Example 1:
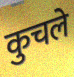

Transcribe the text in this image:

कुचले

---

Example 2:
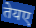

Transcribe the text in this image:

तेयए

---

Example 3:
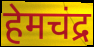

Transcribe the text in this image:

हेमचंद्र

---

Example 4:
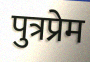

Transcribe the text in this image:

पुत्रप्रेम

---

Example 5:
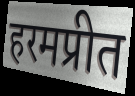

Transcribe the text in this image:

हरमप्रीत